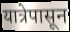
यात्रेपासून